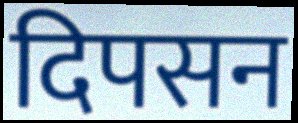
दिपसन